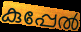
കുപ്പേൽ